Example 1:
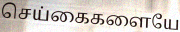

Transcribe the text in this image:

செய்கைகளையே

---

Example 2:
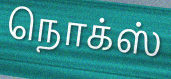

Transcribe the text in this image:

நொக்ஸ்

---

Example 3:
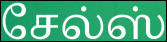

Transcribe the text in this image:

சேல்ஸ்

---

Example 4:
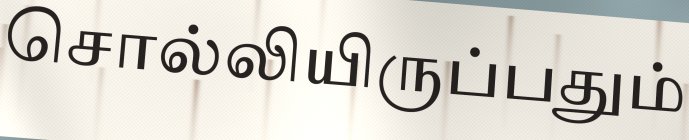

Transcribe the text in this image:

சொல்லியிருப்பதும்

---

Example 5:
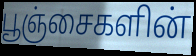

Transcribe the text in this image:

பூஞ்சைகளின்